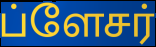
ப்ளேசர்